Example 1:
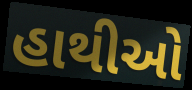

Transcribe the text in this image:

હાથીઓ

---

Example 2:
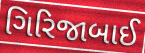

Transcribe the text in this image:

ગિરિજાબાઈ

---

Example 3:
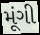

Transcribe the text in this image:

મૂંગી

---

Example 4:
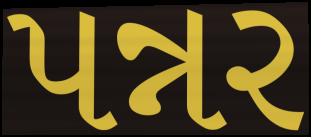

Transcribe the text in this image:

પન્નર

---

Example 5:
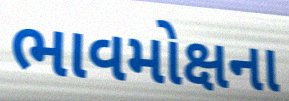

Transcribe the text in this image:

ભાવમોક્ષના